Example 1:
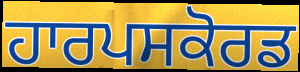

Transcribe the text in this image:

ਹਾਰਪਸਕੋਰਡ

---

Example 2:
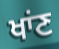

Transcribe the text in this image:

ਖਾਂਣ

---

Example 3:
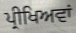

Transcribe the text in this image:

ਪ੍ਰੀਖਿਅਵਾਂ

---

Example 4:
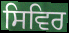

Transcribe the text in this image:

ਸਿਵਿਰ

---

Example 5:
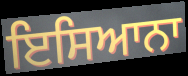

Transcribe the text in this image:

ਇਸਿਆਨਾ